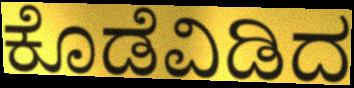
ಕೊಡೆವಿಡಿದ